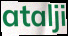
atalji